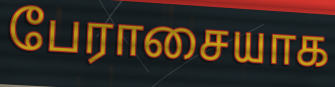
பேராசையாக